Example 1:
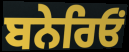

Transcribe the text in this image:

ਬਨੇਰਿਓਂ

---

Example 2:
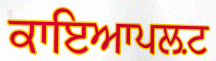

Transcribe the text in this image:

ਕਾਇਆਪਲ਼ਟ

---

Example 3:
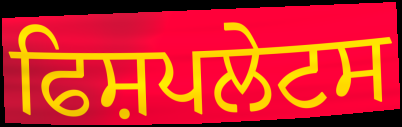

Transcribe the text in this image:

ਫਿਸ਼ਪਲੇਟਸ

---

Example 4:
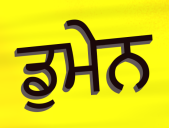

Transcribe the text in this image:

ਡੁਮੇਨ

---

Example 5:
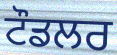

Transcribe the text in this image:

ਟੌਡਲਰ